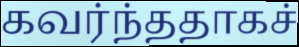
கவர்ந்ததாகச்